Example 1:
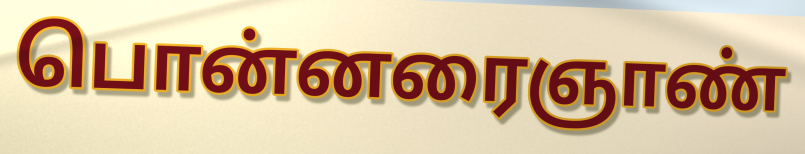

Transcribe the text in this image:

பொன்னரைஞாண்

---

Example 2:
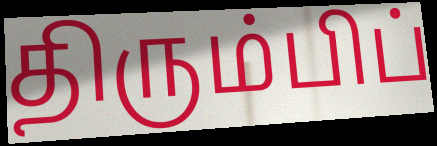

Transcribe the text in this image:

திரும்பிப்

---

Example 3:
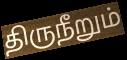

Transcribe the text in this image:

திருநீறும்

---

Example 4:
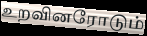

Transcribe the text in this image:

உறவினரோடும்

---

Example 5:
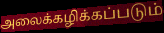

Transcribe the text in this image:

அலைக்கழிக்கப்படும்